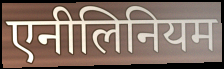
एनीलिनियम